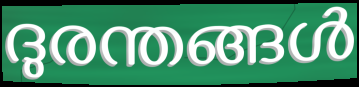
ദുരന്തങ്ങൾ